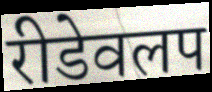
रीडेवलप